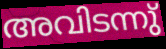
അവിടന്നു്